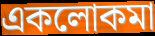
একলোকমা